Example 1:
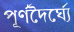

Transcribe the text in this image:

পূর্ণদৈর্ঘ্যে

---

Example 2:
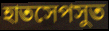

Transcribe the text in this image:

হাতসেপসুত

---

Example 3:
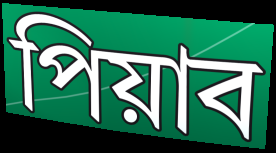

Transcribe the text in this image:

পিয়াব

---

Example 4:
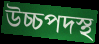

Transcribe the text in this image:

উচ্চপদস্থ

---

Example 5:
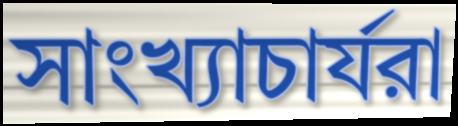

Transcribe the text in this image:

সাংখ্যাচার্যরা